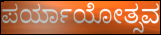
ಪರ್ಯಾಯೋತ್ಸವ